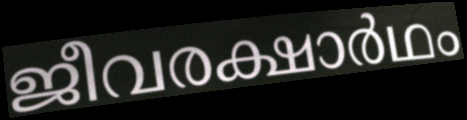
ജീവരക്ഷാർഥം